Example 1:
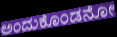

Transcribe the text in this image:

ಅಂದುಕೊಂಡನೋ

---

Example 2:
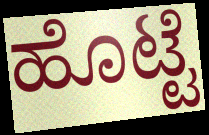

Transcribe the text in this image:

ಹೊಟ್ಟೆ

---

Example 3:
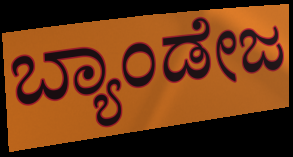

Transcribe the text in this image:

ಬ್ಯಾಂಡೇಜ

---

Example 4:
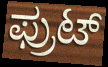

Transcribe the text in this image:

ಫ್ರುಟ್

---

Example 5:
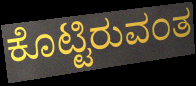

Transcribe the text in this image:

ಕೊಟ್ಟಿರುವಂತ